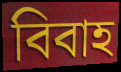
বিবাহ